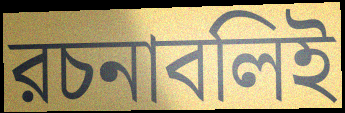
রচনাবলিই